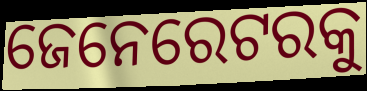
ଜେନେରେଟରକୁ